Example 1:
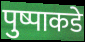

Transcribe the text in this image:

पुष्पाकडे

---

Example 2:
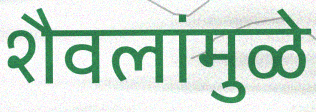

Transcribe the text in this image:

शैवलांमुळे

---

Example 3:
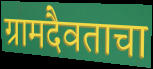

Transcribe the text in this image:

ग्रामदैवताचा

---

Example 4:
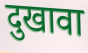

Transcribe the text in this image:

दुखावा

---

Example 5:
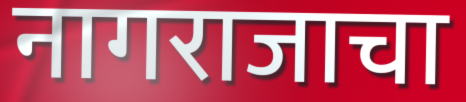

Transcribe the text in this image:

नागराजाचा